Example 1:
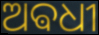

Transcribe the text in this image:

ଅଵଧୀ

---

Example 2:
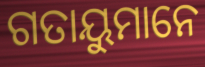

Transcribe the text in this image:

ଗତାୟୁମାନେ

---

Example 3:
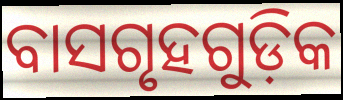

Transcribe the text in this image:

ବାସଗୃହଗୁଡ଼ିକ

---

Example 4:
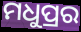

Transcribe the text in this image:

ମଧୁପ୍ରର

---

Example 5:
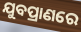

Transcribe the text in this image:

ଯୁବପ୍ରାଣରେ